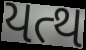
યત્થ